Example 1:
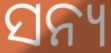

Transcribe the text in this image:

ସନ୍ୟ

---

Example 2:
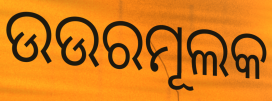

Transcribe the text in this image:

ଉଉରମୂଲକ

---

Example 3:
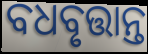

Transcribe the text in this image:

ବଧବୃତ୍ତାନ୍ତ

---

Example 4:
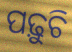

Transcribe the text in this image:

ପଢ଼ୁଚି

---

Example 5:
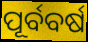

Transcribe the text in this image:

ପୂର୍ବବର୍ଷ